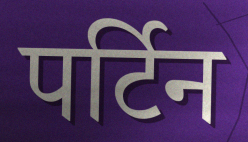
पर्टिन